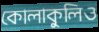
কোলাকুলিও